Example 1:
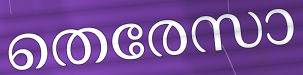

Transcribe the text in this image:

തെരേസാ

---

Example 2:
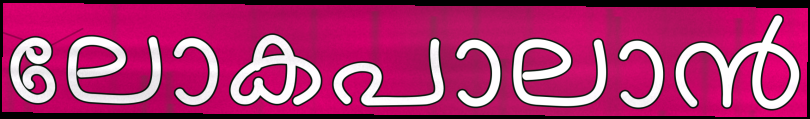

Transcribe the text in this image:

ലോകപാലാൻ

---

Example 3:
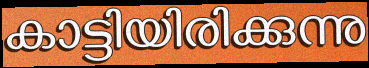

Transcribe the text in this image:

കാട്ടിയിരിക്കുന്നു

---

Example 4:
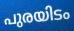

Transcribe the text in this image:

പുരയിടം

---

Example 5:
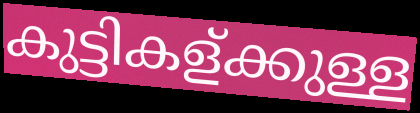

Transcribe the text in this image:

കുട്ടികള്ക്കുള്ള